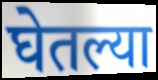
घेतल्या